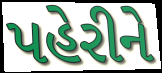
પહેરીને